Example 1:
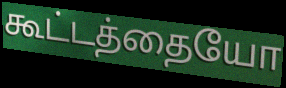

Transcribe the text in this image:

கூட்டத்தையோ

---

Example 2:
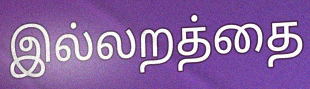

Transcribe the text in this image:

இல்லறத்தை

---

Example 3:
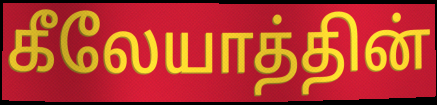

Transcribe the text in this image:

கீலேயாத்தின்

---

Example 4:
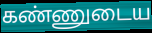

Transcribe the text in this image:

கண்ணுடைய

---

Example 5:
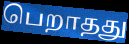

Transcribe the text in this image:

பெறாதது